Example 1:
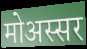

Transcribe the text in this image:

मोअस्सर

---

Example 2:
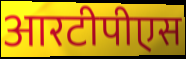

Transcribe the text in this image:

आरटीपीएस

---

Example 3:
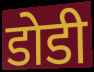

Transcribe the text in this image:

डोडी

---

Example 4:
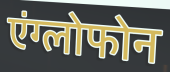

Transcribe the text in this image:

एंग्लोफोन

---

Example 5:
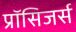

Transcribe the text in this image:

प्रॉसिजर्स